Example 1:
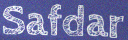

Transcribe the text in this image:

Safdar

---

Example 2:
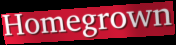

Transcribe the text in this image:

Homegrown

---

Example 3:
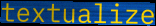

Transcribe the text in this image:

textualize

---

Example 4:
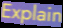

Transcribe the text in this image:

Explain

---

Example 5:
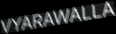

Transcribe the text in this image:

VYARAWALLA